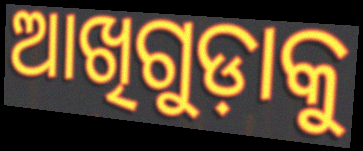
ଆଖିଗୁଡ଼ାକୁ